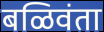
बळिवंता